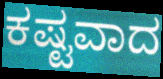
ಕಷ್ಟವಾದ